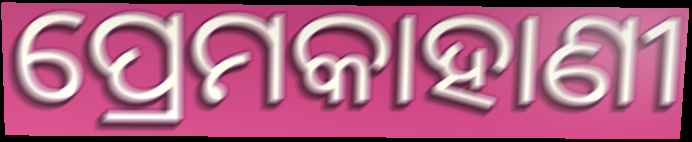
ପ୍ରେମକାହାଣୀ